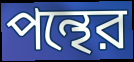
পন্থের